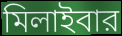
মিলাইবার